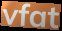
vfat